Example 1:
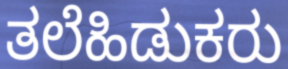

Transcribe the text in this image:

ತಲೆಹಿಡುಕರು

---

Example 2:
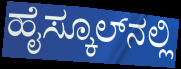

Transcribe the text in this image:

ಹೈಸ್ಕೂಲ್‌ನಲ್ಲಿ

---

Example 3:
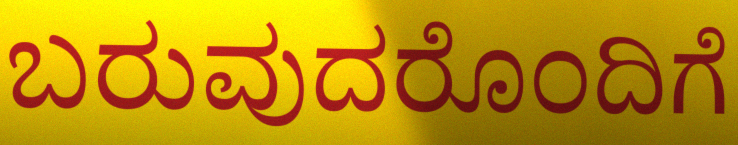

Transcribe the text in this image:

ಬರುವುದರೊಂದಿಗೆ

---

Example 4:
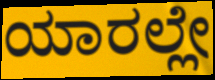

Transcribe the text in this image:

ಯಾರಲ್ಲೇ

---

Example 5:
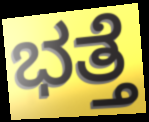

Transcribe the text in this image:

ಭತ್ತೆ